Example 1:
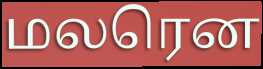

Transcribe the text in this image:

மலரென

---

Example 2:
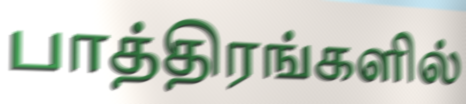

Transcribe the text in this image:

பாத்திரங்களில்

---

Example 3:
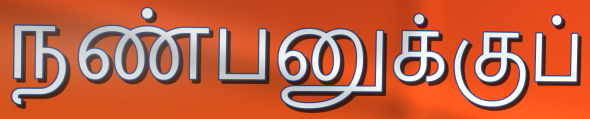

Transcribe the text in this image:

நண்பனுக்குப்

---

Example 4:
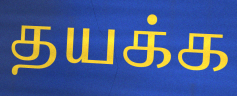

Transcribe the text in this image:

தயக்க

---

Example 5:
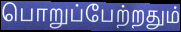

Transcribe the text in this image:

பொறுப்பேற்றதும்